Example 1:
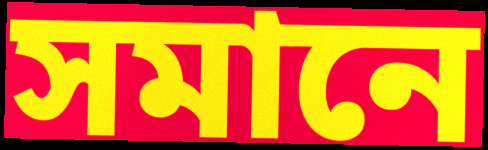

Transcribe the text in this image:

সমানে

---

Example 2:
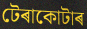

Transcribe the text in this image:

টেৰাকোটাৰ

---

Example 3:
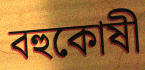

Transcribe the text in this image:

বহুকোষী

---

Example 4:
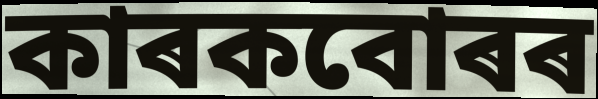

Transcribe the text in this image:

কাৰকবোৰৰ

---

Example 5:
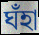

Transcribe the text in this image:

ঘঁহা